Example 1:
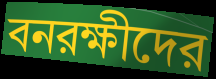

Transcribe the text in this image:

বনরক্ষীদের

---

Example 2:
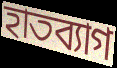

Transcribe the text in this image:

হাতব্যাগ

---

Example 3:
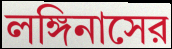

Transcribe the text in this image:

লঙ্গিনাসের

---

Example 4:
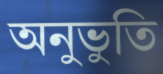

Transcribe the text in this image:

অনুভুতি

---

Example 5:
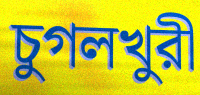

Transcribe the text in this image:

চুগলখুরী